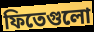
ফিতেগুলো